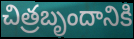
చిత్రబృందానికి